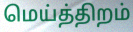
மெய்த்திறம்